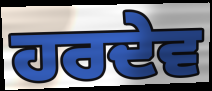
ਹਰਦੇਵ